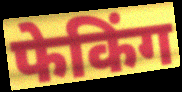
फेकिंग